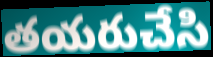
తయరుచేసి